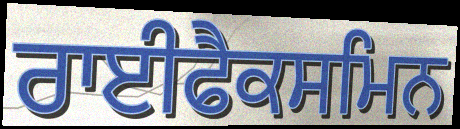
ਰਾਈਫੈਕਸਮਿਨ